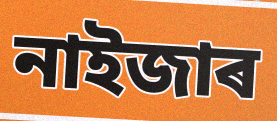
নাইজাৰ